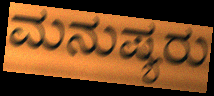
ಮನುಷ್ಯರು